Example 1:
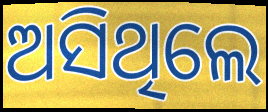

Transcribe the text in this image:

ଅସିଥିଲେ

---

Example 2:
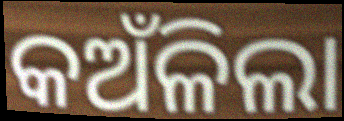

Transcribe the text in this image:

କଅଁଳିଲା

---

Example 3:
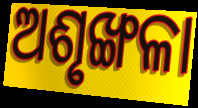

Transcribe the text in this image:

ଅଶୃଙ୍ଖଳା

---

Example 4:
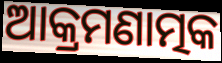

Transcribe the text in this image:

ଆକ୍ରମଣାତ୍ମକ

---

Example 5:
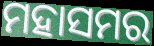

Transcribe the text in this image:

ମହାସମର